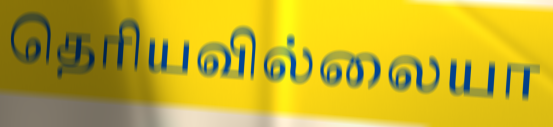
தெரியவில்லையா